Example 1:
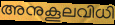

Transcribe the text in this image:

അനുകൂലവിധി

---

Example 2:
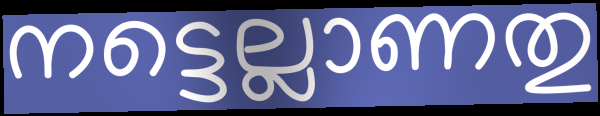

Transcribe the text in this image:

നട്ടെല്ലാണതു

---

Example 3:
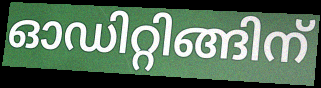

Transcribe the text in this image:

ഓഡിറ്റിങ്ങിന്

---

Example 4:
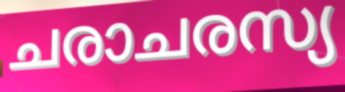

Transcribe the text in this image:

ചരാചരസ്യ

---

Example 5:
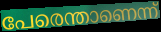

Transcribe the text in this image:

പേരെന്താണെന്ന്